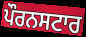
ਪੌਰਨਸਟਾਰ